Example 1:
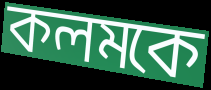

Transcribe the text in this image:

কলমকে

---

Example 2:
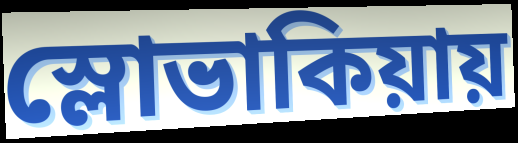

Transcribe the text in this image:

স্লোভাকিয়ায়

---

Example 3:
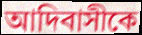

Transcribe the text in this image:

আদিবাসীকে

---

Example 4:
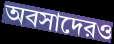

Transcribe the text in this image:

অবসাদেরও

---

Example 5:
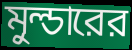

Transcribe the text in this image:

মুল্ডারের